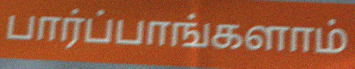
பார்ப்பாங்களாம்